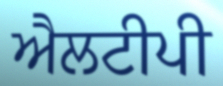
ਐਲਟੀਪੀ